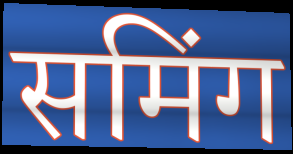
समिंग